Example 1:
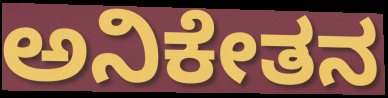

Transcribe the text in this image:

ಅನಿಕೇತನ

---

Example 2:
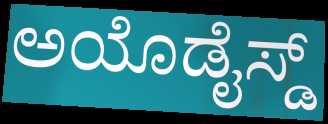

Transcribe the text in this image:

ಅಯೊಡೈಸ್ಡ್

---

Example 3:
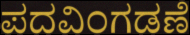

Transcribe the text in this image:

ಪದವಿಂಗಡಣೆ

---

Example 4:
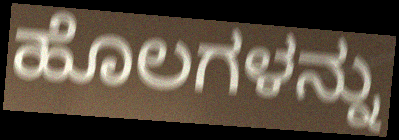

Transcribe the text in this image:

ಹೊಲಗಳನ್ನು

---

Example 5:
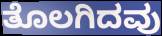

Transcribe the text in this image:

ತೊಲಗಿದವು